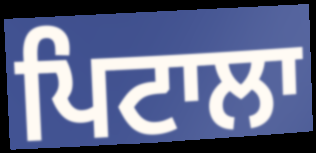
ਪਿਟਾਲਾ